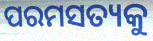
ପରମସତ୍ୟକୁ